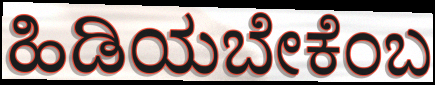
ಹಿಡಿಯಬೇಕೆಂಬ